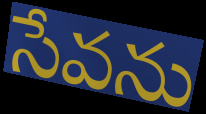
సేవను